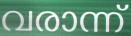
വരാന്ന്